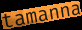
tamanna